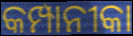
କମ୍ପାନୀକା